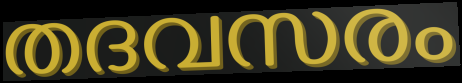
തദവസരം